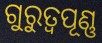
ଗୁରୁତ୍ବପୂଣ୍ଣ